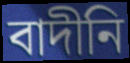
বাদীনি